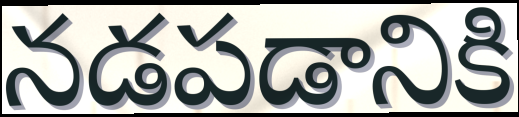
నడపడానికి